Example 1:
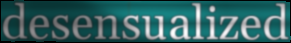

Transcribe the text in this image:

desensualized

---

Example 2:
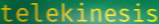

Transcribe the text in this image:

telekinesis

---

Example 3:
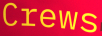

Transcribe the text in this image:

Crews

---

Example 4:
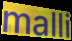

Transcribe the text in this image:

malli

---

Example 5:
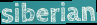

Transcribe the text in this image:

siberian